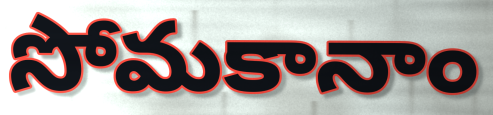
సోమకానాం